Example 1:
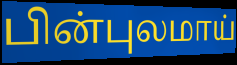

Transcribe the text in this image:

பின்புலமாய்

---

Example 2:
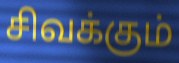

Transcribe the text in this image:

சிவக்கும்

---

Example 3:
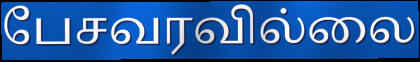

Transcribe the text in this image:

பேசவரவில்லை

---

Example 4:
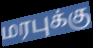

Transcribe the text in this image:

மரபுக்கு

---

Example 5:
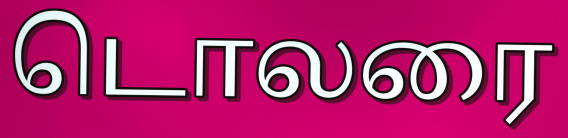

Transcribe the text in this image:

டொலரை